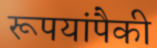
रूपयांपैकी